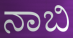
ನಾಬಿ